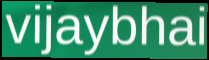
vijaybhai